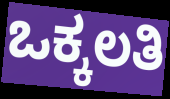
ಒಕ್ಕಲತಿ